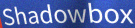
Shadowbox